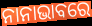
ନାନାଭାବରେ